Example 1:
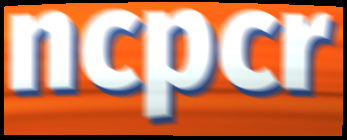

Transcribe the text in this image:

ncpcr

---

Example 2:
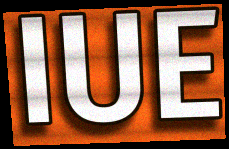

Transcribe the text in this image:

IUE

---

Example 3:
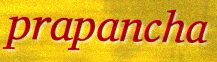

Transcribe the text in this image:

prapancha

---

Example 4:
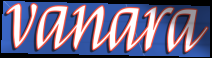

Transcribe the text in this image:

vanara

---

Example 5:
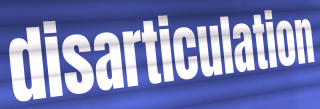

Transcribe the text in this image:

disarticulation